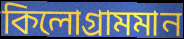
কিলোগ্ৰামমান